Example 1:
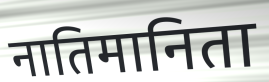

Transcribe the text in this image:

नातिमानिता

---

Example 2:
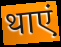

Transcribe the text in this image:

थाएं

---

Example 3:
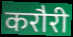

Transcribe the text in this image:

करौरी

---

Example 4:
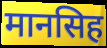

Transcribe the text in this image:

मानसिह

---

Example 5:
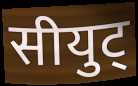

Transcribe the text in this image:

सीयुट्